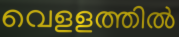
വെളളത്തിൽ